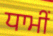
ਧਾਮੀਂ